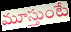
మూస్తుంటే